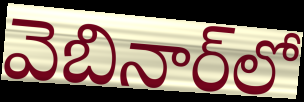
వెబినార్‌లో